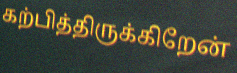
கற்பித்திருக்கிறேன்